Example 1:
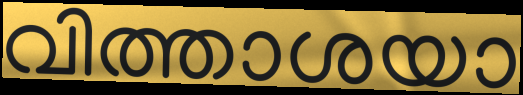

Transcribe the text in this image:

വിത്താശയാ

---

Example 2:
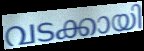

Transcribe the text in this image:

വടക്കായി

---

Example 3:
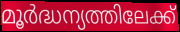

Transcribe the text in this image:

മൂർദ്ധന്യത്തിലേക്ക്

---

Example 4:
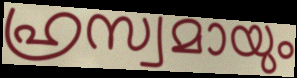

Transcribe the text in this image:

ഹ്രസ്വമായും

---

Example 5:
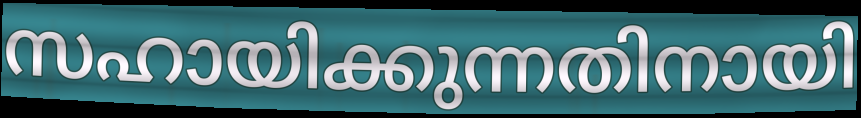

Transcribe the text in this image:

സഹായിക്കുന്നതിനായി